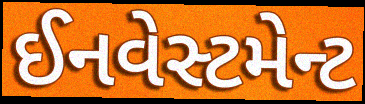
ઈનવેસ્ટમેન્ટ